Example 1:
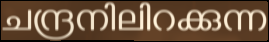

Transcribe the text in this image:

ചന്ദ്രനിലിറക്കുന്ന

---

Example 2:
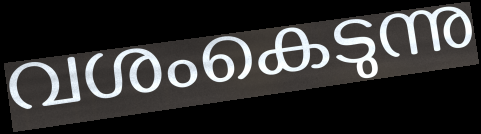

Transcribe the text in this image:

വശംകെടുന്നു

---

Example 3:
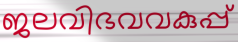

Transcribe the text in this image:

ജലവിഭവവകുപ്പ്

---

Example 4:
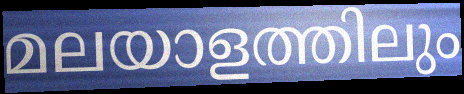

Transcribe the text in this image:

മലയാളത്തിലും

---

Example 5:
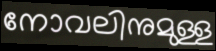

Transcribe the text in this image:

നോവലിനുമുള്ള